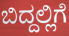
ಬಿದ್ದಲ್ಲಿಗೆ